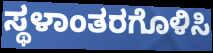
ಸ್ಥಳಾಂತರಗೊಳಿಸಿ